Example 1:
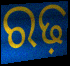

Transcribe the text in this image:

ରଢ଼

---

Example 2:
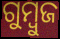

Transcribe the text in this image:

ଗୁମ୍ବୁଜ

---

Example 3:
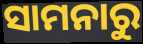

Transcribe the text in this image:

ସାମନାରୁ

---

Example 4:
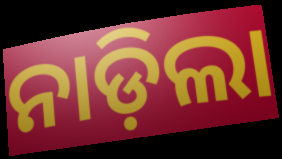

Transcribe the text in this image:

ନାଡ଼ିଲା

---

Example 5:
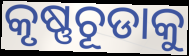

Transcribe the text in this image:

କୃଷ୍ଣଚୂଡାକୁ